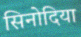
सिनोदिया